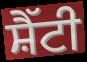
ਸ਼ੈੱਟੀ